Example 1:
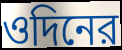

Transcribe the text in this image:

ওদিনের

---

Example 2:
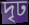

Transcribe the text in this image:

দৃঢ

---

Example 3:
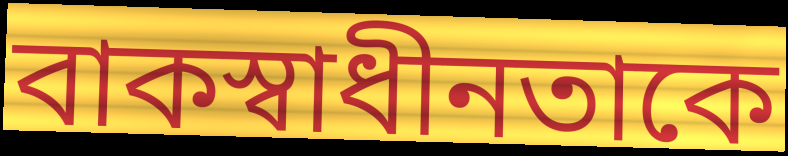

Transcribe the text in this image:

বাকস্বাধীনতাকে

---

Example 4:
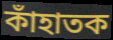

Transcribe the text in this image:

কাঁহাতক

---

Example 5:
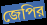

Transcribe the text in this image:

জেপির